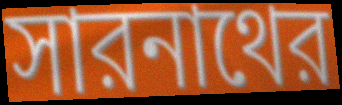
সারনাথের